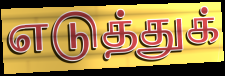
எடுத்துக்